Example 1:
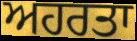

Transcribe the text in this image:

ਅਹਰਤਾ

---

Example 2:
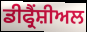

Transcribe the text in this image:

ਡੀਫ੍ਰੈਂਸ਼ੀਅਲ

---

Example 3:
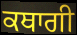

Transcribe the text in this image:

ਕਥਾਗੀ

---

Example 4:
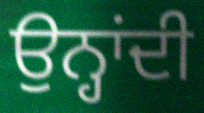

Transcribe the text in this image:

ਉਨ੍ਹਾਂਦੀ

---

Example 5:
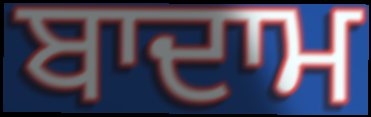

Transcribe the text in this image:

ਬਾਦਾਮ